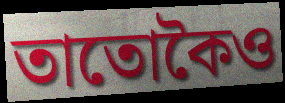
তাতোকৈও